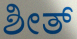
ಶೀತ್